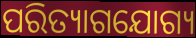
ପରିତ୍ୟାଗଯୋଗ୍ୟ